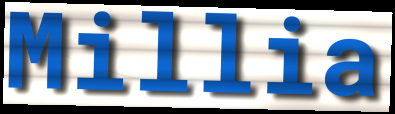
Millia